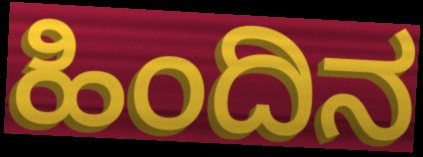
ಹಿಂದಿನ